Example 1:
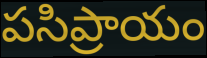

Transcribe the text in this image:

పసిప్రాయం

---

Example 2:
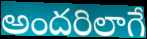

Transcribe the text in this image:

అందరిలాగే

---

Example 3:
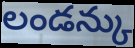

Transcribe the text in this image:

లండన్కు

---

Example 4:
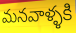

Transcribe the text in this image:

మనవాళ్ళకి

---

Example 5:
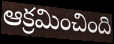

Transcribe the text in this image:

ఆక్రమించింది